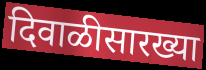
दिवाळीसारख्या